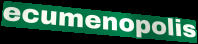
ecumenopolis